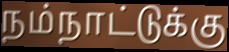
நம்நாட்டுக்கு